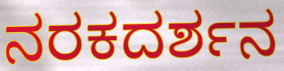
ನರಕದರ್ಶನ